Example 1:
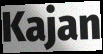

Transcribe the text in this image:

Kajan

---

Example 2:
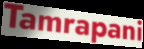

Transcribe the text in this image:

Tamrapani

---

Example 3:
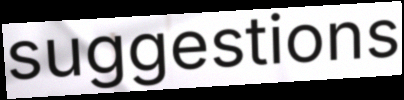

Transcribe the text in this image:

suggestions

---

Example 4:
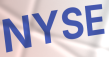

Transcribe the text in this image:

NYSE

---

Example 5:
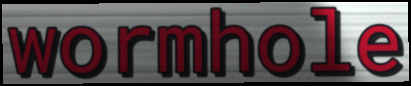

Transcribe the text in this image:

wormhole